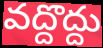
వద్దొద్దు